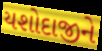
યશોદાજીને